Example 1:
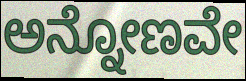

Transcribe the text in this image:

ಅನ್ನೋಣವೇ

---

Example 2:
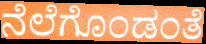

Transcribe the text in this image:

ನೆಲೆಗೊಂಡಂತೆ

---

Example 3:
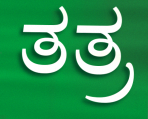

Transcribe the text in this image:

ತತ್ರ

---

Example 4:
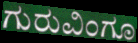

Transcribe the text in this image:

ಗುರುವಿಂಗೂ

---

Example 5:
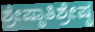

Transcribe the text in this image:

ಶ್ರೇಷ್ಠಾತಿಶ್ರೇಷ್ಠ